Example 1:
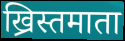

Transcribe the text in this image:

ख्रिस्तमाता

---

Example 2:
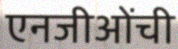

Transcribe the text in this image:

एनजीओंची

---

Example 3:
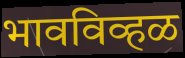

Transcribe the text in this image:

भावविव्हळ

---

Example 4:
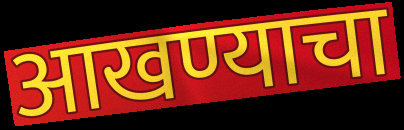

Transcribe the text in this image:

आखण्याचा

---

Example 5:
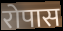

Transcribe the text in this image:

रोपास